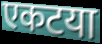
एकटया